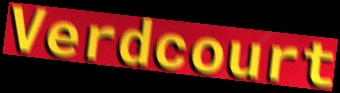
Verdcourt